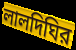
লালদিঘির